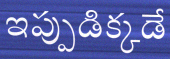
ఇప్పుడిక్కడే